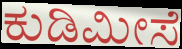
ಕುಡಿಮೀಸೆ